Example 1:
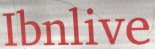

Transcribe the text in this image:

Ibnlive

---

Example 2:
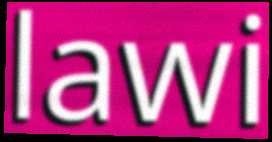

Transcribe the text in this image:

lawi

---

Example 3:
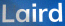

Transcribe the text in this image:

Laird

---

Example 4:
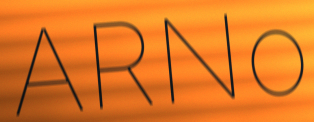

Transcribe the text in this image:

ARNo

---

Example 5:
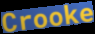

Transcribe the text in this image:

Crooke